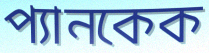
প্যানকেক